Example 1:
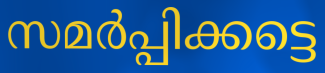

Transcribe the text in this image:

സമർപ്പിക്കട്ടെ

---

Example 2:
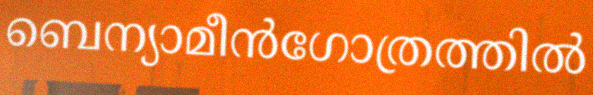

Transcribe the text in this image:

ബെന്യാമീൻഗോത്രത്തിൽ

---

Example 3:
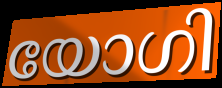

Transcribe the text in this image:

യോഗി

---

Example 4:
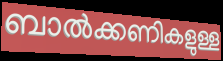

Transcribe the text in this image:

ബാൽക്കണികളുള്ള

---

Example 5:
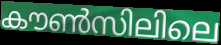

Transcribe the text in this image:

കൗൺസിലിലെ